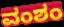
ವಂಶಂ